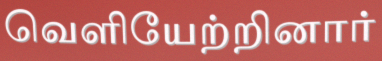
வெளியேற்றினார்